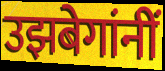
उझबेगांनीं